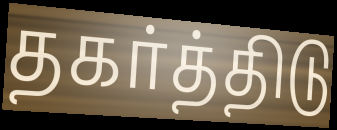
தகர்த்திடு